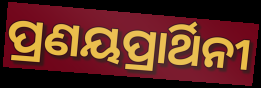
ପ୍ରଣୟପ୍ରାର୍ଥିନୀ